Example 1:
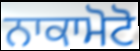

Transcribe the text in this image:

ਨਾਕਾਮੋਟੋ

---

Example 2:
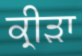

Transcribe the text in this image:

ਕ੍ਰੀੜਾ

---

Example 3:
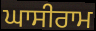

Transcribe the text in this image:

ਘਾਸੀਰਾਮ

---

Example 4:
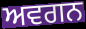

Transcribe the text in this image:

ਅਵਗਨ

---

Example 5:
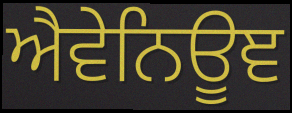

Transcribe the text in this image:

ਐਵੇਨਿਊਞ